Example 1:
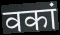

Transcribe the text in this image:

वकां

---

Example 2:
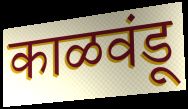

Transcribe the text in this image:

काळवंडू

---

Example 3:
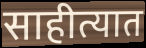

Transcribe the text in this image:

साहीत्यात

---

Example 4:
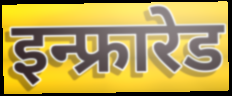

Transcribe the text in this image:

इन्फ्रारेड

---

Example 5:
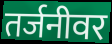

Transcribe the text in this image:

तर्जनीवर